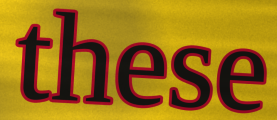
these